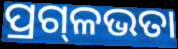
ପ୍ରଗ୍‍ଳଭତା